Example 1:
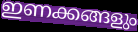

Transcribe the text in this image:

ഇണക്കങ്ങളും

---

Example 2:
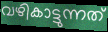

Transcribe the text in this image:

വഴികാട്ടുന്നത്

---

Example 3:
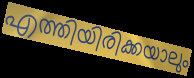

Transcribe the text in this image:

എത്തിയിരിക്കയാലും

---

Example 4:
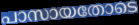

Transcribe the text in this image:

പാസായതോടെ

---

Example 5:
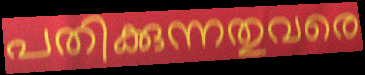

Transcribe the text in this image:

പതിക്കുന്നതുവരെ